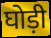
घोड़ी